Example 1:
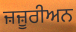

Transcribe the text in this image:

ਜ਼ਜ਼ੂਰੀਅਨ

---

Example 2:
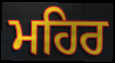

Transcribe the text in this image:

ਮਹਿਰ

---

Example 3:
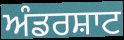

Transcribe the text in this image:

ਅੰਡਰਸ਼ਾਟ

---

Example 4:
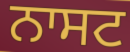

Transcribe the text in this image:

ਨਾਸਟ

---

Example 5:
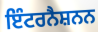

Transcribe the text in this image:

ਇੰਟਰਨੈਸ਼ਨਨ